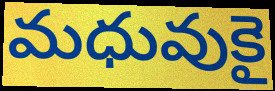
మధువుకై